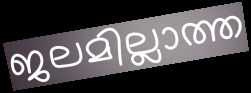
ജലമില്ലാത്ത